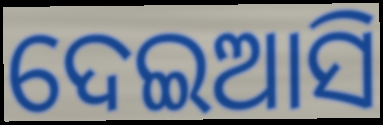
ଦେଇଆସି